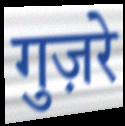
गुज़रे